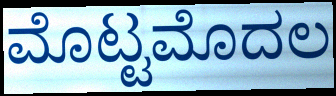
ಮೊಟ್ಟಮೊದಲ